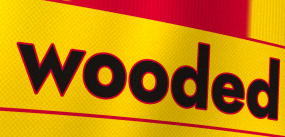
wooded